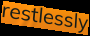
restlessly